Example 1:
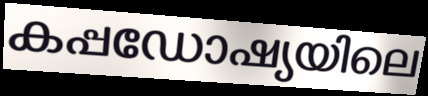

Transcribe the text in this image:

കപ്പഡോഷ്യയിലെ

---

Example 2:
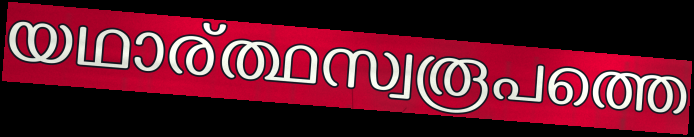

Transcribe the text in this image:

യഥാര്ത്ഥസ്വരൂപത്തെ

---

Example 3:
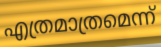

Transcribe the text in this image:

എത്രമാത്രമെന്ന്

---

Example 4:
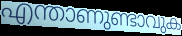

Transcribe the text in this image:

എന്താണുണ്ടാവുക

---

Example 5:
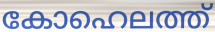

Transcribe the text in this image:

കോഹെലത്ത്